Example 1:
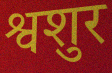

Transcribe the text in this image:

श्वशुर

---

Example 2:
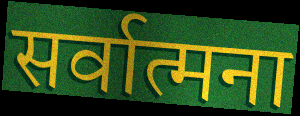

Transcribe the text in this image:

सर्वात्मना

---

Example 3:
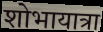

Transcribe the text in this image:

शोभायात्रा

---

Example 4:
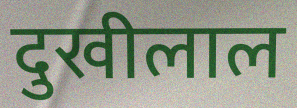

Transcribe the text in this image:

दुखीलाल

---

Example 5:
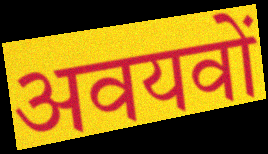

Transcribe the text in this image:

अवयवों